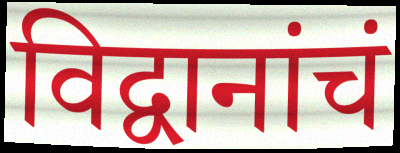
विद्वानांचं